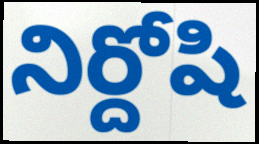
నిర్దోషి